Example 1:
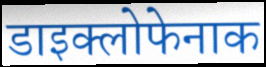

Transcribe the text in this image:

डाइक्लोफेनाक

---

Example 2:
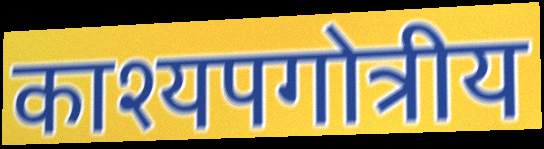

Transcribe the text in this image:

काश्यपगोत्रीय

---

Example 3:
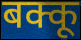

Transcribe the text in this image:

बक्कू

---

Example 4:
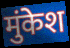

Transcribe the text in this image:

मुंकेश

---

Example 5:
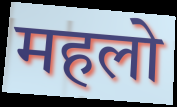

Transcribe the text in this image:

महलो